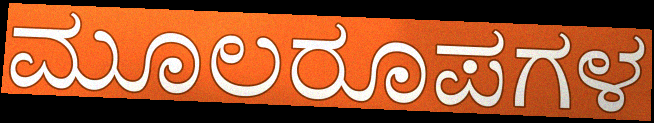
ಮೂಲರೂಪಗಳ